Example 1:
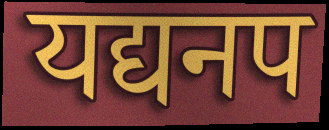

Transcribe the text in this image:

यद्यनप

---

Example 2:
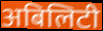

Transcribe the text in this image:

अबिलिटी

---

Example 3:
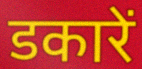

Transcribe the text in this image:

डकारें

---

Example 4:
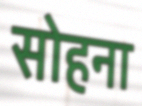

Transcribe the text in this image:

सोहना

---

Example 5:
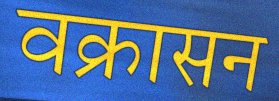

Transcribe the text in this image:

वक्रासन